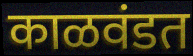
काळवंडत